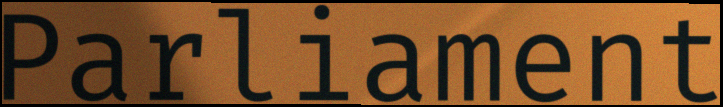
Parliament